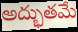
అద్భుతమే